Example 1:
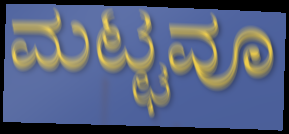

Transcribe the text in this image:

ಮಟ್ಟವೂ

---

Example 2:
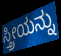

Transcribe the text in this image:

ಸ್ತ್ರೀಯನ್ನು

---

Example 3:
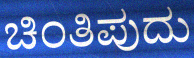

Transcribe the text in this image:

ಚಿಂತಿಪುದು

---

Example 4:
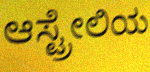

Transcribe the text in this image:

ಆಸ್ಟ್ರೇಲಿಯ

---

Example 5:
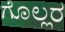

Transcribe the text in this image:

ಗೊಲ್ಲರ